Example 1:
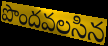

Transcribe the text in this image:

పొందవలసిన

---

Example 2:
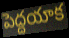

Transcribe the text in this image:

పెద్దయాక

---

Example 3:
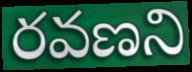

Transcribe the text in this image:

రవణని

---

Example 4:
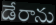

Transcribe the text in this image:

డేరాను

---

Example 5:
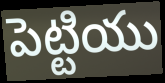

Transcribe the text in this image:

పెట్టియు